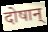
दोषान्